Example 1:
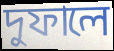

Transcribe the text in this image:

দুফালে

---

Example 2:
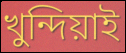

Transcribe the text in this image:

খুন্দিয়াই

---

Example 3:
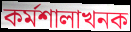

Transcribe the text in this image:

কৰ্মশালাখনক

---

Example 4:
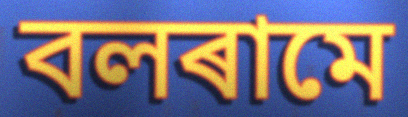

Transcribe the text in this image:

বলৰামে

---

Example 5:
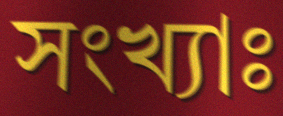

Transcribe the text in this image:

সংখ্যাঃ